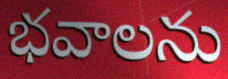
భవాలను